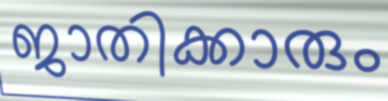
ജാതിക്കാരും